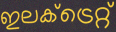
ഇലക്ട്രെറ്റ്